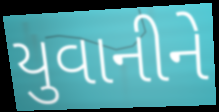
યુવાનીને